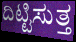
ದಿಟ್ಟಿಸುತ್ತ